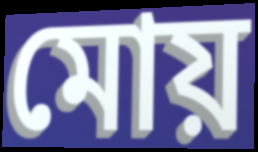
মোয়